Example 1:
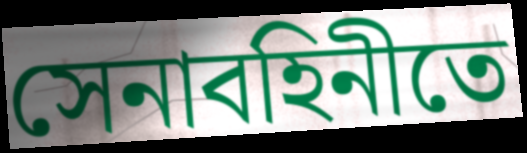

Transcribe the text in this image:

সেনাবহিনীতে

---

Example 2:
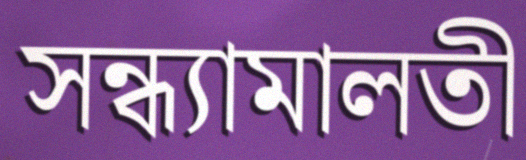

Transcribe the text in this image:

সন্ধ্যামালতী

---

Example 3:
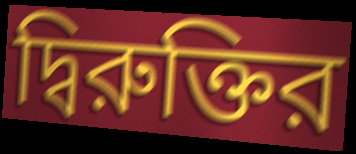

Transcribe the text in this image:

দ্বিরুক্তির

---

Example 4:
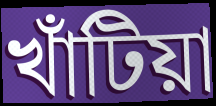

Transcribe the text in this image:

খাঁটিয়া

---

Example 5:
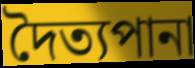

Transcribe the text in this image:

দৈত্যপানা